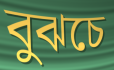
বুঝচে